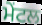
ਮੇਂਟਲ